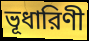
ভূধারিণী